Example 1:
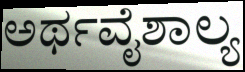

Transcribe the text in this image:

ಅರ್ಥವೈಶಾಲ್ಯ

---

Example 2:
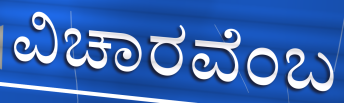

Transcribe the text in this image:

ವಿಚಾರವೆಂಬ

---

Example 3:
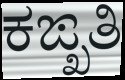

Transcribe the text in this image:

ಕಙ್ಖತಿ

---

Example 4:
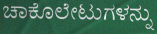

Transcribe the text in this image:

ಚಾಕೊಲೇಟುಗಳನ್ನು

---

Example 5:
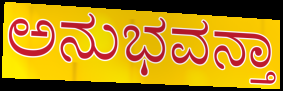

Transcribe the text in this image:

ಅನುಭವನ್ತಾ